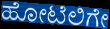
ಹೋಟೆಲಿಗೇ